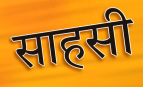
साहसी